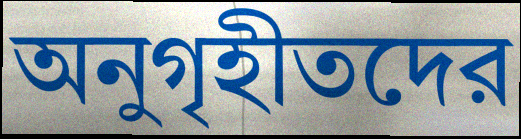
অনুগৃহীতদের